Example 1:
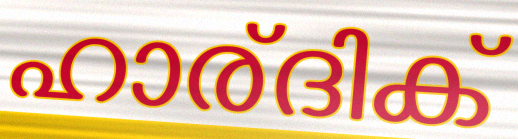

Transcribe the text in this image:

ഹാര്ദിക്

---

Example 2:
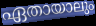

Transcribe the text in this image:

ഏതായാലും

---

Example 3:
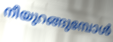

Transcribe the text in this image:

നീയുറങ്ങുമ്പോൾ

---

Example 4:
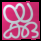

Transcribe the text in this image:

യ്ക്കു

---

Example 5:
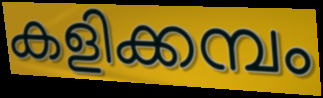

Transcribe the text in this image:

കളിക്കമ്പം